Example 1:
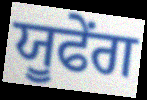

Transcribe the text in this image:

ਯੂਫੇਂਗ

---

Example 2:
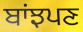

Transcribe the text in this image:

ਬਾਂਝਪਣ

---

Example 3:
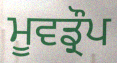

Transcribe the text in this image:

ਮੂਵਡ੍ਰੌਪ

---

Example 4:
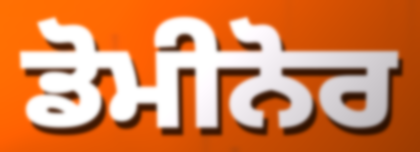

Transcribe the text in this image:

ਡੋਮੀਨੋਰ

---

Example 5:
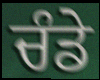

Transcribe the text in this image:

ਚੰਡੇ